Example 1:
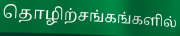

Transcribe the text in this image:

தொழிற்சங்கங்களில்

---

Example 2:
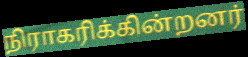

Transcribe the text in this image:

நிராகரிக்கின்றனர்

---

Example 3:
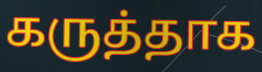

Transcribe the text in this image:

கருத்தாக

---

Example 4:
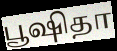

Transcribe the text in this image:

பூஷிதா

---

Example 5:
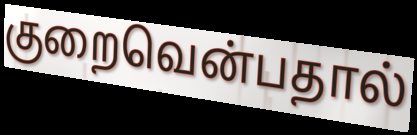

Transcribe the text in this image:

குறைவென்பதால்